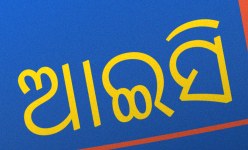
ଆଇସି